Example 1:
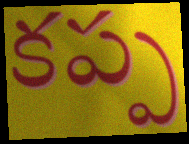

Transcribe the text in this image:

కప్ప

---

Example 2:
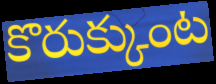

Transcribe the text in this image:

కొరుక్కుంట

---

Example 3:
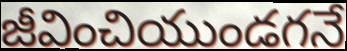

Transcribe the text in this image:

జీవించియుండగనే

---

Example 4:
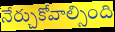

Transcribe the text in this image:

నేర్చుకోవాల్సింది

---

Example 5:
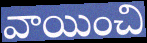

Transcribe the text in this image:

వాయించి